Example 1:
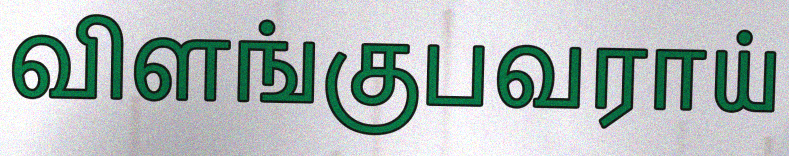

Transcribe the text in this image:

விளங்குபவராய்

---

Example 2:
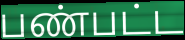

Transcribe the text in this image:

பண்பட்ட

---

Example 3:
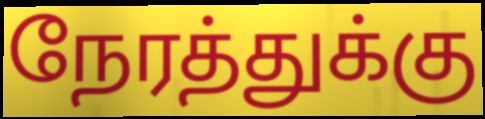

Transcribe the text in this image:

நேரத்துக்கு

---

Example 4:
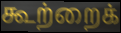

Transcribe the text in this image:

கூற்றைக்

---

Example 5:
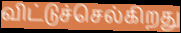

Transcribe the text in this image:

விட்டுச்செல்கிறது